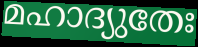
മഹാദ്യുതേഃ